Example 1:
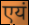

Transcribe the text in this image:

एयं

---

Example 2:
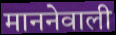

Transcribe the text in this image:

माननेवाली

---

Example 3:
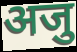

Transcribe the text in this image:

अजु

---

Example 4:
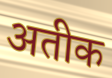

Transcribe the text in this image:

अतीक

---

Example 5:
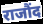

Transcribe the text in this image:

राजौंद